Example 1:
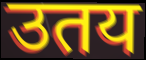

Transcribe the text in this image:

उतय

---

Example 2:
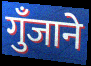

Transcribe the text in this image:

गुँजाने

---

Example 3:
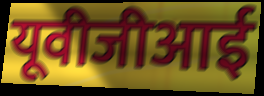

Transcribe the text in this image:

यूवीजीआई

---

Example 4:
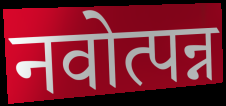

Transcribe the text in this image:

नवोत्पन्न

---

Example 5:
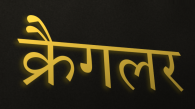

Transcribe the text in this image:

क्रैगलर